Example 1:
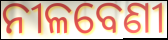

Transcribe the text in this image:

ନୀଳବେଣୀ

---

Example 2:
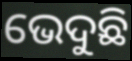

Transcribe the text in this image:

ଭେଦୁଛି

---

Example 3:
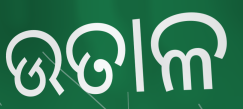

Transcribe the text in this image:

ଉତାଳ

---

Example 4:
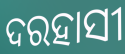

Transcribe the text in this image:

ଦରହାସୀ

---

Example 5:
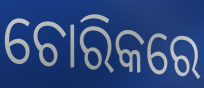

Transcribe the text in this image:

ଚୋରିକରେ